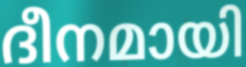
ദീനമായി